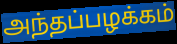
அந்தப்பழக்கம்